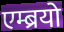
एम्ब्रयो